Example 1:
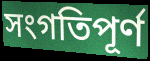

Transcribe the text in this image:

সংগতিপূর্ণ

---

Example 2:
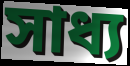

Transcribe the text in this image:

সাধ্য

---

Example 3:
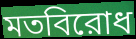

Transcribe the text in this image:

মতবিরোধ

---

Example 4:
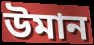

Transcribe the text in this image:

উমান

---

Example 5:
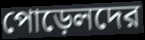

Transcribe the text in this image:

পোড়েলদের